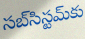
సబ్‌సిస్టమ్‌కు